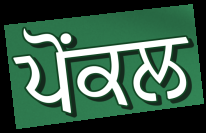
ਪੋਂਕਲ